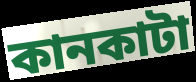
কানকাটা